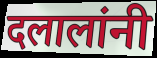
दलालांनी